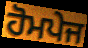
ਹੋਮਪੇਜ